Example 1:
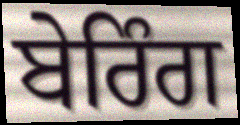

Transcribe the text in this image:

ਬੇਰਿੰਗ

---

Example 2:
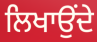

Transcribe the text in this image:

ਲਿਖਾਉਂਦੇ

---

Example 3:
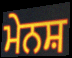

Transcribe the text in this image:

ਮੇਨਸ਼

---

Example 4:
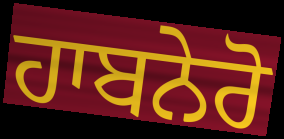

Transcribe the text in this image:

ਹਾਬਨੇਰੋ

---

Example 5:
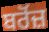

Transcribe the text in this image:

ਬਰੋਂਜ਼